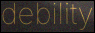
debility